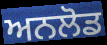
ਅਨਲੋਡ